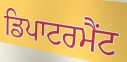
ਡਿਪਾਟਰਮੈਂਟ